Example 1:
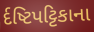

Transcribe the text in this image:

ર્દષ્ટિપટ્ટિકાના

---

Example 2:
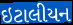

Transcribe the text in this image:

ઇટાલીયન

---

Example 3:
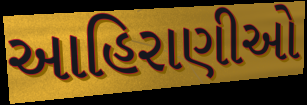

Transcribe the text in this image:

આહિરાણીઓ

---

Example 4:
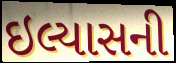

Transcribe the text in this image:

ઇલ્યાસની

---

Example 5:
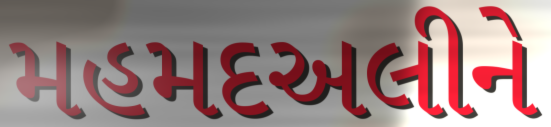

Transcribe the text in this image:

મહમદઅલીને